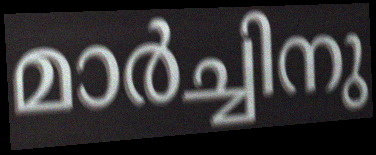
മാർച്ചിനു